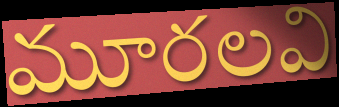
మూరలవి